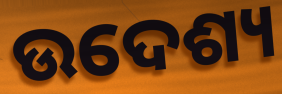
ଉଦେଶ୍ୟ